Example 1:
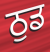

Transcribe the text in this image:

ਠੁਡ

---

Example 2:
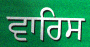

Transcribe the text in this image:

ਵਾਰਿਸ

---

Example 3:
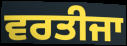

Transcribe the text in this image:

ਵਰਤੀਜਾ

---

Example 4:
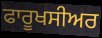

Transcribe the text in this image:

ਫਾਰੂਖਸੀਅਰ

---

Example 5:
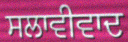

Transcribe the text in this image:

ਸਲਾਵੀਵਾਦ